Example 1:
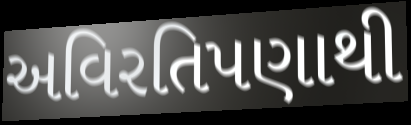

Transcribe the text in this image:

અવિરતિપણાથી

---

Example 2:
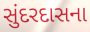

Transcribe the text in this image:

સુંદરદાસના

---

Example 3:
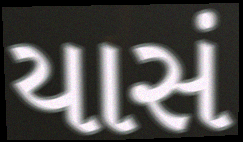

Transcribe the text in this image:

યાસં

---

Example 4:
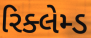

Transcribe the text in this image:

રિક્લેમ્ડ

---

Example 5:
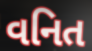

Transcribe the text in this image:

વનિત